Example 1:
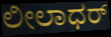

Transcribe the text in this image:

ಲೀಲಾಧರ್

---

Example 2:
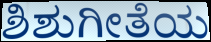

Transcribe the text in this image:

ಶಿಶುಗೀತೆಯ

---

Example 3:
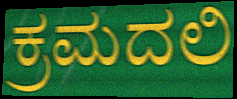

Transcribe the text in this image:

ಕ್ರಮದಲಿ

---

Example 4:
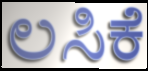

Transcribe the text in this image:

ಲಸಿಕೆ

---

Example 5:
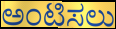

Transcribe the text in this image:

ಅಂಟಿಸಲು